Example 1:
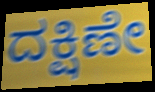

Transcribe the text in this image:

ದಕ್ಷಿಣೇ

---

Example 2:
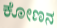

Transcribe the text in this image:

ಕೋಣನ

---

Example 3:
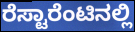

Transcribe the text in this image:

ರೆಸ್ಟಾರೆಂಟಿನಲ್ಲಿ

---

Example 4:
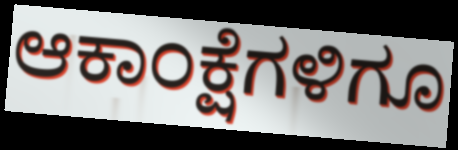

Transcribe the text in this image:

ಆಕಾಂಕ್ಷೆಗಳಿಗೂ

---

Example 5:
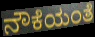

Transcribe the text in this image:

ನೌಕೆಯಂತೆ